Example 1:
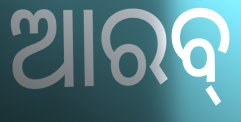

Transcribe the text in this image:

ଆରବ୍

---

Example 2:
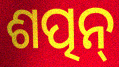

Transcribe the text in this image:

ଶତ୍ପନ୍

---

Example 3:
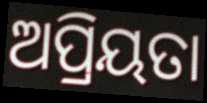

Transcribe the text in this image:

ଅପ୍ରିୟତା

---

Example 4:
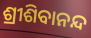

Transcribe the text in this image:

ଶ୍ରୀଶିବାନନ୍ଦ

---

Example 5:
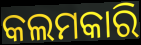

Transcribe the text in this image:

କଲମକାରି